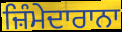
ਜ਼ਿੰਮੇਦਾਰਾਨਾ